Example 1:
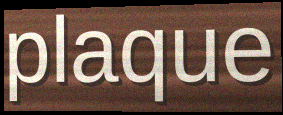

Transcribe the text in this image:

plaque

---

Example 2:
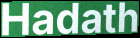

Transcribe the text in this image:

Hadath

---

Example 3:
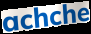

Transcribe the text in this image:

achche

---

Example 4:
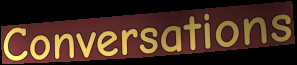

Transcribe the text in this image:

Conversations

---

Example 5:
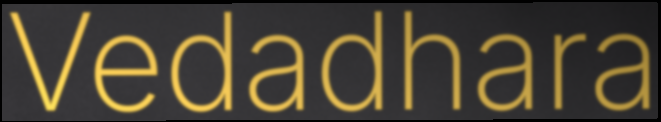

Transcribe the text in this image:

Vedadhara